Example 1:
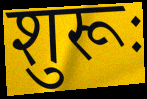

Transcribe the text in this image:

शुरूः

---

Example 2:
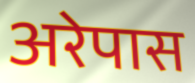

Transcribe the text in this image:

अरेपास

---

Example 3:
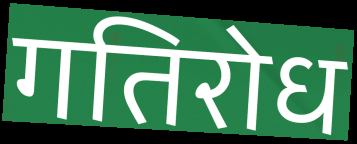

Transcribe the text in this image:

गतिरोध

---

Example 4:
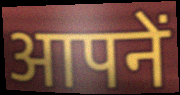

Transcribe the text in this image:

आपनें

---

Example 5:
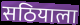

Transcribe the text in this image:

सठियाला